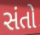
સંતો